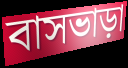
বাসভাড়া